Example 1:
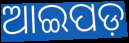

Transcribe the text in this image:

ଆଇପଡ଼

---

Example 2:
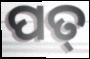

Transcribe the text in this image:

ପତ୍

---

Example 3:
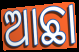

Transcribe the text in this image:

ଆଛା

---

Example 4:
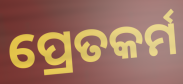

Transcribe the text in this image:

ପ୍ରେତକର୍ମ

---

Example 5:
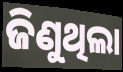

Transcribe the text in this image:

ଜିଣୁଥିଲା